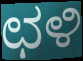
ಛಳಿ